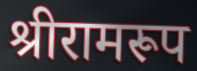
श्रीरामरूप